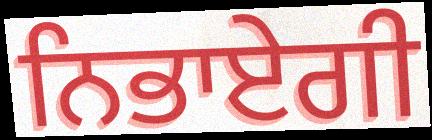
ਨਿਭਾਏਗੀ